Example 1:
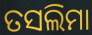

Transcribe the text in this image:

ତସଲିମା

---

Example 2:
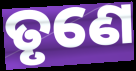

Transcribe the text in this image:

ତୃଣେ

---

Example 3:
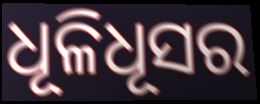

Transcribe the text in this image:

ଧୂଳିଧୂସର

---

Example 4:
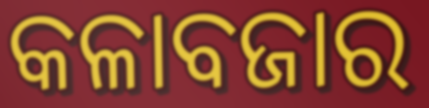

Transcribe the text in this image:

କଳାବଜାର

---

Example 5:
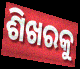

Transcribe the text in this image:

ଶିଖରକୁ